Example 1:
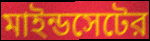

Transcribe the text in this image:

মাইন্ডসেটের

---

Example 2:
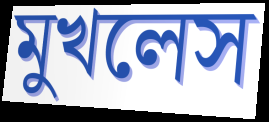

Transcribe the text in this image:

মুখলেস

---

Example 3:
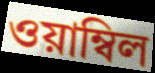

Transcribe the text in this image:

ওয়াম্বিল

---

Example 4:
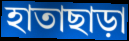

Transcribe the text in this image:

হাতাছাড়া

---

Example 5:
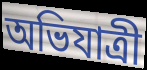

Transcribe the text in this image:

অভিযাত্রী